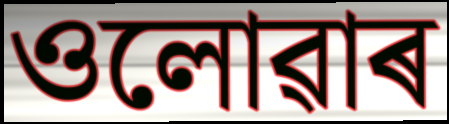
ওলোৱাৰ